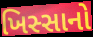
ખિસ્સાનો